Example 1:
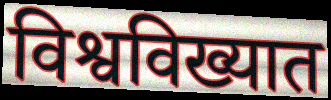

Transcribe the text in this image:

विश्वविख्यात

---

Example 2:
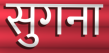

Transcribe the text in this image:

सुगना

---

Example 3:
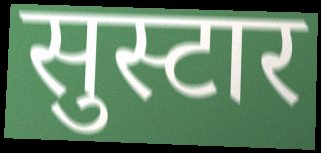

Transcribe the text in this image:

सुस्टार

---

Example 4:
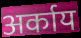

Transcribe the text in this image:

अर्काय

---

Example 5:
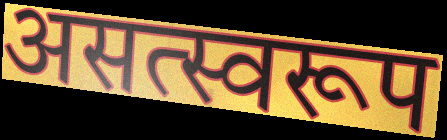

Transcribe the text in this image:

असत्स्वरूप